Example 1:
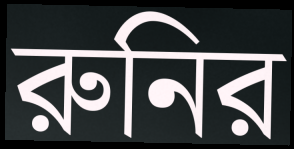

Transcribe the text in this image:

রুনির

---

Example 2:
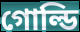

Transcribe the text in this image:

গোল্ডি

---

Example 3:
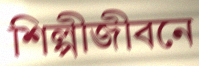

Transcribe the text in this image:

শিল্পীজীবনে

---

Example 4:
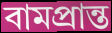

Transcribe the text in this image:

বামপ্রান্ত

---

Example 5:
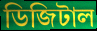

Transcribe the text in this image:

ডিজিটাল